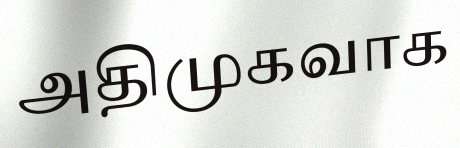
அதிமுகவாக